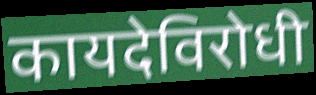
कायदेविरोधी